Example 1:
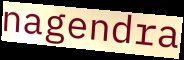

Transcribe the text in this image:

nagendra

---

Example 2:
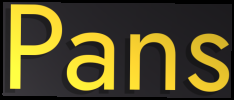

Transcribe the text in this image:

Pans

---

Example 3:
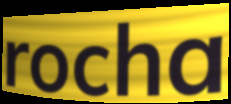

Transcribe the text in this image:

rocha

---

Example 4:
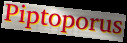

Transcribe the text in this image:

Piptoporus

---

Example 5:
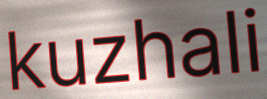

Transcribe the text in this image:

kuzhali